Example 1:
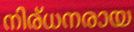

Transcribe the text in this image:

നിര്ധനരായ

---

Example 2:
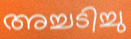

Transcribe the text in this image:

അച്ചടിച്ചു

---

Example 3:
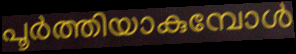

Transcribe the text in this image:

പൂർത്തിയാകുമ്പോൾ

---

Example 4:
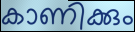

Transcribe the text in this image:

കാണിക്കും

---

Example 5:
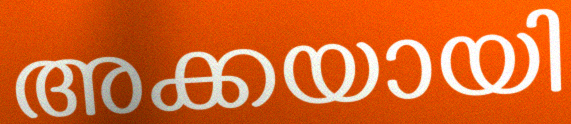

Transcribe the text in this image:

അക്കയായി